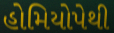
હોમિયોપેથી